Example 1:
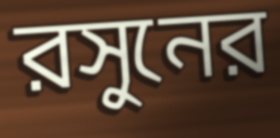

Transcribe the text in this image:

রসুনের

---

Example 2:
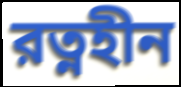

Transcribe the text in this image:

রত্নহীন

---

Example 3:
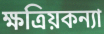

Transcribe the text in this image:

ক্ষত্রিয়কন্যা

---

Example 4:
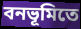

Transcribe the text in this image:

বনভূমিতে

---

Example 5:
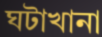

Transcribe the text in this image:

ঘটাখানা